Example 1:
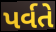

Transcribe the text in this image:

પર્વતે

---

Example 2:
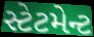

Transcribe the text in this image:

સ્ટેટમેન્ટ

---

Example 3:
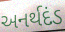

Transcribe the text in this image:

અનર્થદંડ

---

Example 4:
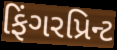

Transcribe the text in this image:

ફિંગરપ્રિન્ટ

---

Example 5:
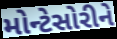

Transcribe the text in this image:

મોન્ટેસોરીને